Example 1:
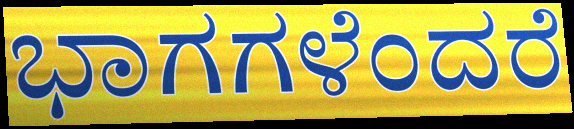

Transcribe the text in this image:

ಭಾಗಗಳೆಂದರೆ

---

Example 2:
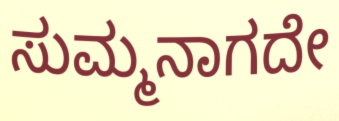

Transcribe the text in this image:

ಸುಮ್ಮನಾಗದೇ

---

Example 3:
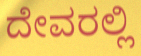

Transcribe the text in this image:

ದೇವರಲ್ಲಿ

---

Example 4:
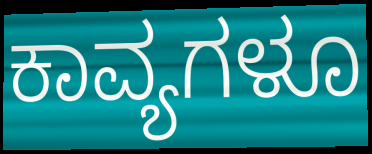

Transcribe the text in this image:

ಕಾವ್ಯಗಳೂ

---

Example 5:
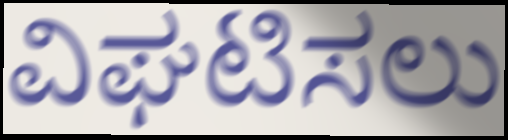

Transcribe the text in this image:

ವಿಘಟಿಸಲು